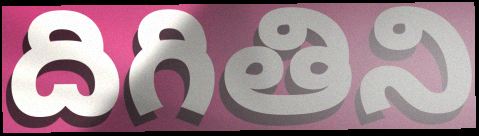
దిగితిని